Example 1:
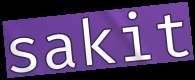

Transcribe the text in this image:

sakit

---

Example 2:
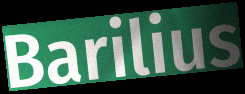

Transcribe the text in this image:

Barilius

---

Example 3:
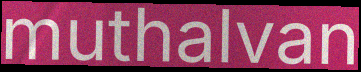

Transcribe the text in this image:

muthalvan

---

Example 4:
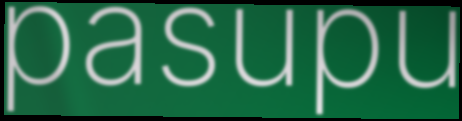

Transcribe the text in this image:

pasupu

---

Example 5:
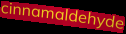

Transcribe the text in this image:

cinnamaldehyde